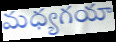
మధ్యగయా